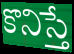
కొనిస్తే